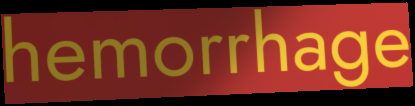
hemorrhage